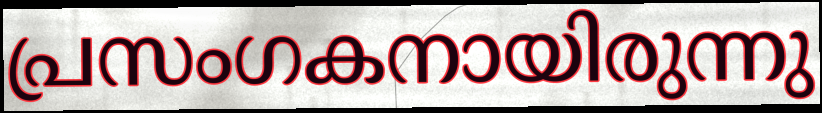
പ്രസംഗകനായിരുന്നു